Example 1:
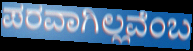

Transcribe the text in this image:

ಪರವಾಗಿಲ್ಲವೆಂಬ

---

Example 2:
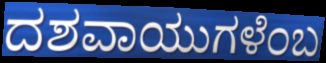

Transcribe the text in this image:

ದಶವಾಯುಗಳೆಂಬ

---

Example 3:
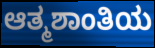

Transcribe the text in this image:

ಆತ್ಮಶಾಂತಿಯ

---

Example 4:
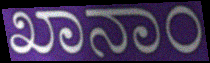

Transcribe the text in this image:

ಖಾನಾಂ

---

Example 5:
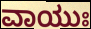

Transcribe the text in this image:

ವಾಯುಃ